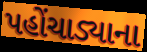
પહોંચાડ્યાના